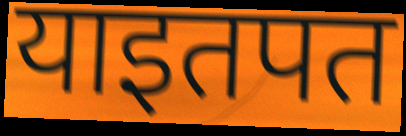
याइतपत